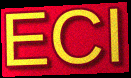
ECI